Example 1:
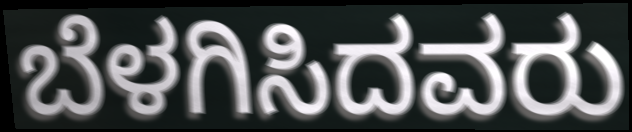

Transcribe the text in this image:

ಬೆಳಗಿಸಿದವರು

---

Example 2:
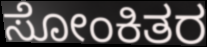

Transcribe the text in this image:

ಸೋಂಕಿತರ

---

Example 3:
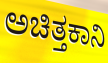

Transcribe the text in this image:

ಅಚಿತ್ತಕಾನಿ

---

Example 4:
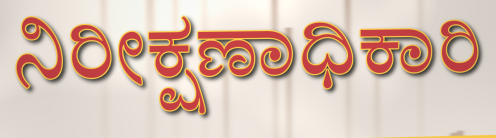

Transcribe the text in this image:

ನಿರೀಕ್ಷಣಾಧಿಕಾರಿ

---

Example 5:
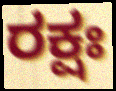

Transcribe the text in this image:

ರಕ್ಷಃ